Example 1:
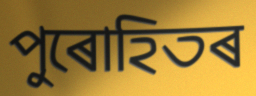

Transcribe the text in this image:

পুৰোহিতৰ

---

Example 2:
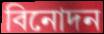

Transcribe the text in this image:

বিনোদন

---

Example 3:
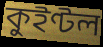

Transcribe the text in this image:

কুইণ্টল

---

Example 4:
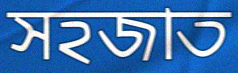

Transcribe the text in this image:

সহজাত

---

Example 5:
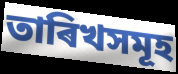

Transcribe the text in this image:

তাৰিখসমূহ